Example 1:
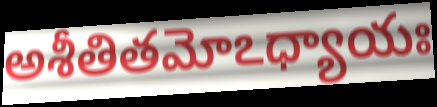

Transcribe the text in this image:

అశీతితమోఽధ్యాయః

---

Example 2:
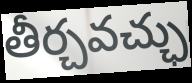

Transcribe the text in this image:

తీర్చవచ్ఛు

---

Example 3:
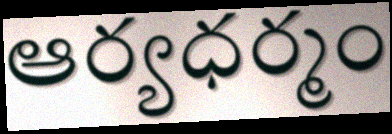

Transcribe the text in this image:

ఆర్యధర్మం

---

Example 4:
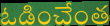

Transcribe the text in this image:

ఓడించేంత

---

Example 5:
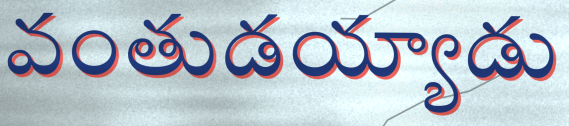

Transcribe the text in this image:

వంతుడయ్యాడు